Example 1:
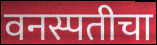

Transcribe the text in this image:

वनस्पतीचा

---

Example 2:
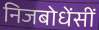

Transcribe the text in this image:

निजबोधेंसीं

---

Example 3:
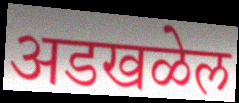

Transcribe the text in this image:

अडखळेल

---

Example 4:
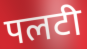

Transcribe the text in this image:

पलटी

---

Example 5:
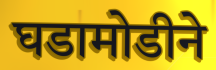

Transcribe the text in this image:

घडामोडीने